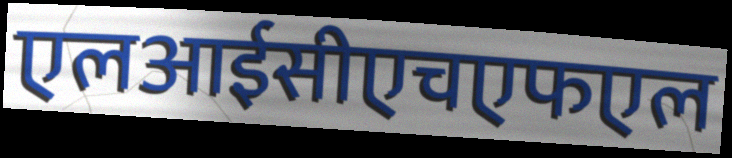
एलआईसीएचएफएल